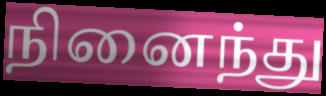
நினைந்து